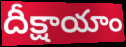
దీక్షాయాం